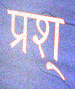
प्रश्